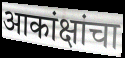
आकांक्षांचा